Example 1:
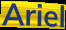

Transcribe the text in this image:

Ariel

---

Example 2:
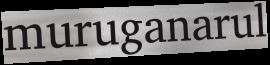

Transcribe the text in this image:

muruganarul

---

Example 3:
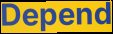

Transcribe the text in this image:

Depend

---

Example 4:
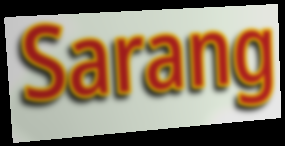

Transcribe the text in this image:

Sarang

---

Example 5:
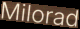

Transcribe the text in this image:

Milorad